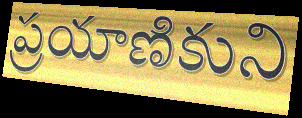
ప్రయాణికుని